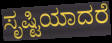
ಸೃಷ್ಟಿಯಾದರೆ